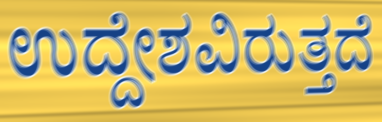
ಉದ್ದೇಶವಿರುತ್ತದೆ